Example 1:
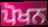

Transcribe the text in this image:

ਪੋਖਨ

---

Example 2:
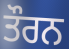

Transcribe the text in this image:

ਤੌਰਨ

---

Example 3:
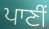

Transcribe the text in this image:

ਪਾਣੀਂ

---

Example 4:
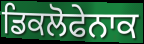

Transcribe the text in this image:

ਡਿਕਲੋਫੇਨਾਕ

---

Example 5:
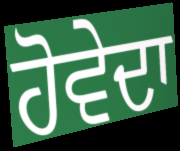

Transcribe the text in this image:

ਹੋਵੇਦਾ